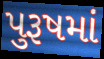
પુરૂષમાં